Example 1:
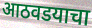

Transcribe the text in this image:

आठवडयाचा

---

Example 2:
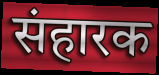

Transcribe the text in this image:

संहारक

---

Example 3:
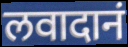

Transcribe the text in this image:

लवादानं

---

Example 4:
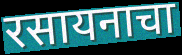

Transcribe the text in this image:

रसायनाचा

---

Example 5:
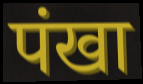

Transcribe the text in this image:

पंखा